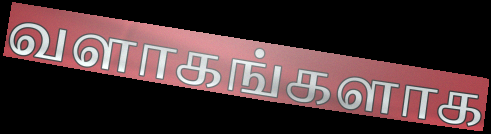
வளாகங்களாக